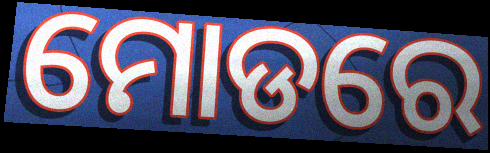
ମୋଡରେ